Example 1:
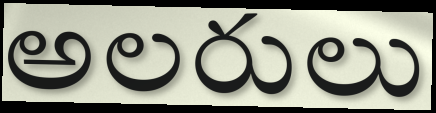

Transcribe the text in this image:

అలరులు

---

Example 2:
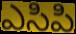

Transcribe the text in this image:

ఎసిపి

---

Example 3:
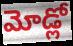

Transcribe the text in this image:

మోడ్లో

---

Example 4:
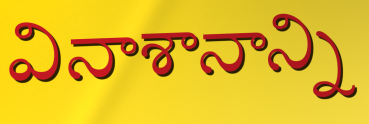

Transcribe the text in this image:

వినాశానాన్ని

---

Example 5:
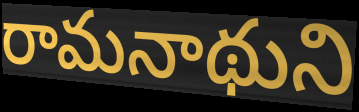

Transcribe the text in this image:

రామనాథుని